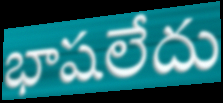
భాషలేదు